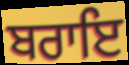
ਬਰਾਇ